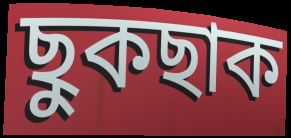
ছুকছাক